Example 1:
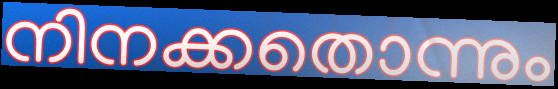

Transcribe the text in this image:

നിനക്കതൊന്നും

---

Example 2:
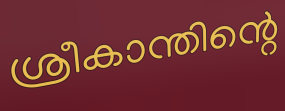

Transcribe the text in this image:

ശ്രീകാന്തിന്റെ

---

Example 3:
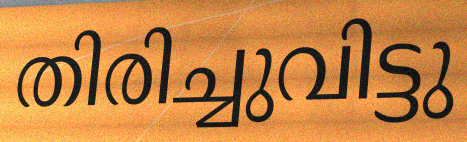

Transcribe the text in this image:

തിരിച്ചുവിട്ടു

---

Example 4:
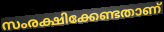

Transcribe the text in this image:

സംരക്ഷിക്കേണ്ടതാണ്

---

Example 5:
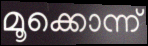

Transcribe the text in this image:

മൂക്കൊന്ന്